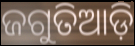
ଜଗୁତିଆଡ଼ି